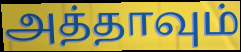
அத்தாவும்